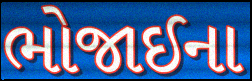
ભોજાઈના